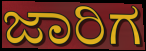
ಜಾರಿಗ